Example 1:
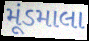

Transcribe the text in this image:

મૂંડમાલા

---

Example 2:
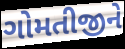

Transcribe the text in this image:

ગોમતીજીને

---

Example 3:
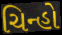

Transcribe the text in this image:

ચિન્હો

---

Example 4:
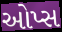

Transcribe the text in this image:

ઓપ્સ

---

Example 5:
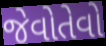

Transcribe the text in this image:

જેવોતેવો